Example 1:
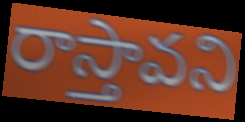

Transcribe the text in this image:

రాస్తావని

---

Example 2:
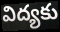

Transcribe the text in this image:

విద్యకు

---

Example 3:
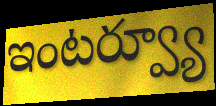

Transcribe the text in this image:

ఇంటర్వ్యూ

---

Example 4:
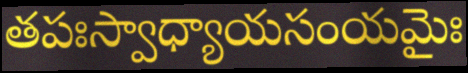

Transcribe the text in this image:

తపఃస్వాధ్యాయసంయమైః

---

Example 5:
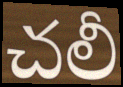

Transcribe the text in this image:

చలీ